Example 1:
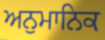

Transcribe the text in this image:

ਅਨੁਮਾਨਿਕ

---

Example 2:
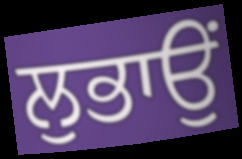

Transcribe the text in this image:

ਲੁਭਾਉਂ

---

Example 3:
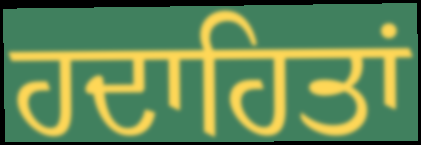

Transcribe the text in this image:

ਹਦਾਹਿਤਾਂ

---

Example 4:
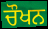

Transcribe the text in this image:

ਚੌਖਨ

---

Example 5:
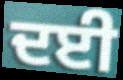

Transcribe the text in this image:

ਦਈ